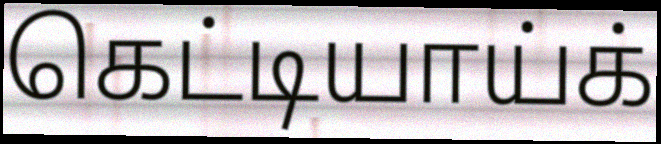
கெட்டியாய்க்